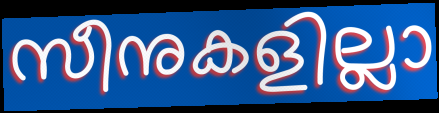
സീനുകളില്ലാ